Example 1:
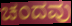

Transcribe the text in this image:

ಚಂದವು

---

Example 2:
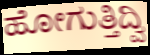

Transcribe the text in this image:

ಹೋಗುತ್ತಿದ್ವಿ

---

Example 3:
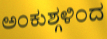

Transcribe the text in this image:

ಅಂಕುಶ್ಗಳಿಂದ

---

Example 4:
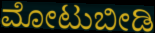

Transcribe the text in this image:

ಮೋಟುಬೀಡಿ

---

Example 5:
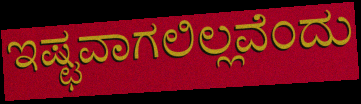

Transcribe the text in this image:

ಇಷ್ಟವಾಗಲಿಲ್ಲವೆಂದು